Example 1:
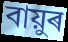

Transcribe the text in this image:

বায়ুৰ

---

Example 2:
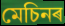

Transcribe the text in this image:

মেচিনৰ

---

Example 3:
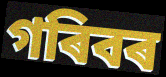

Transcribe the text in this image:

গৰিবৰ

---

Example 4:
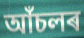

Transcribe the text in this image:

আঁচলৰ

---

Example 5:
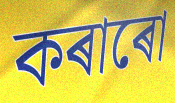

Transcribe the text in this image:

কৰাৰো